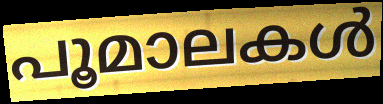
പൂമാലകൾ